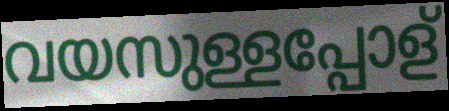
വയസുള്ളപ്പോള്